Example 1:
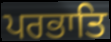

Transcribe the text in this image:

ਪਰਭਾਤਿ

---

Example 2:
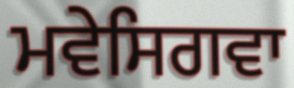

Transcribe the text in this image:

ਮਵੇਸਿਗਵਾ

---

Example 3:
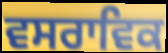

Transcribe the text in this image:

ਵਸਰਾਵਿਕ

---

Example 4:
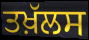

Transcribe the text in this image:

ਤਖ਼ੱਲਸ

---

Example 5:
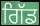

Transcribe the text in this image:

ਗਿੱਡ